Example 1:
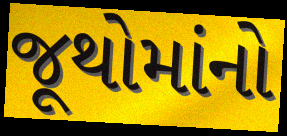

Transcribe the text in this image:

જૂથોમાંનો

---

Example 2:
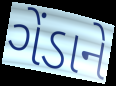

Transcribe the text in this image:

ગેંડાને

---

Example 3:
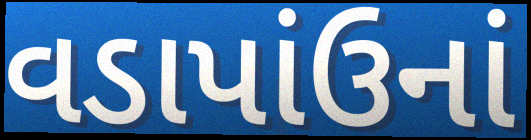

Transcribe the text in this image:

વડાપાંઉનાં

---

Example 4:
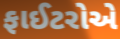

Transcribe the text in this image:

ફાઈટરોએ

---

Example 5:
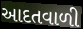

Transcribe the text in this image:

આદતવાળી